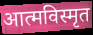
आत्मविस्मृत